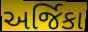
અર્જિકા